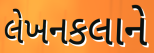
લેખનકલાને